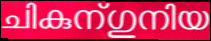
ചികുന്ഗുനിയ